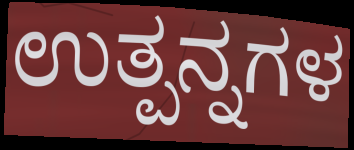
ಉತ್ಪನ್ನಗಳ